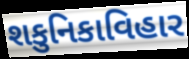
શકુનિકાવિહાર